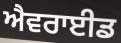
ਐਵਰਾਈਡ